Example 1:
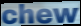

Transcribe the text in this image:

chew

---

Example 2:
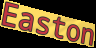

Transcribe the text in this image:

Easton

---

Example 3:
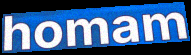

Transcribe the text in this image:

homam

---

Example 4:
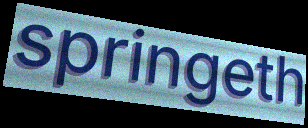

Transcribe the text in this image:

springeth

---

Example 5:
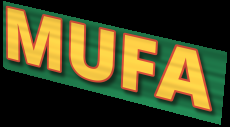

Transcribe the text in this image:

MUFA